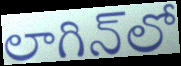
లాగిన్‌లో